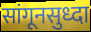
सांगूनसुध्दा